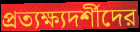
প্রত্যক্ষ্যদর্শীদের